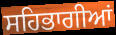
ਸਹਿਭਾਗੀਆਂ